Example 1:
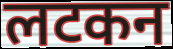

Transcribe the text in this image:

लटकन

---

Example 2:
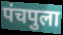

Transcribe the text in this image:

पंचपुला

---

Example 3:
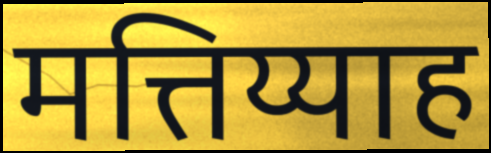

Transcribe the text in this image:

मत्तिय्याह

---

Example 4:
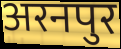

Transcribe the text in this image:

अरनपुर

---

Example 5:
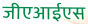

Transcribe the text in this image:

जीएआईएस